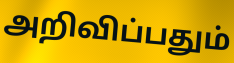
அறிவிப்பதும்